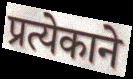
प्रत्येकाने